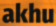
akhu